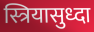
स्त्रियासुध्दा